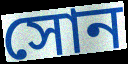
সোন